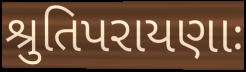
શ્રુતિપરાયણાઃ